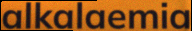
alkalaemia